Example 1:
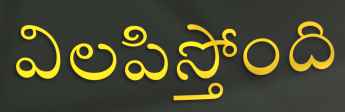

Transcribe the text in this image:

విలపిస్తోంది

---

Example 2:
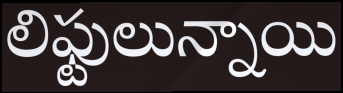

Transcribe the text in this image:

లిఫ్టులున్నాయి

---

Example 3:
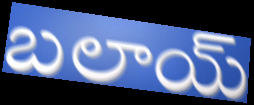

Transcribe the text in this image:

బలాయ్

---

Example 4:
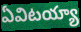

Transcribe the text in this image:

ఏవిటయ్యా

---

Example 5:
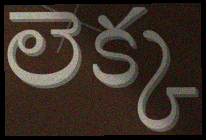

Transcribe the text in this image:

లెక్క